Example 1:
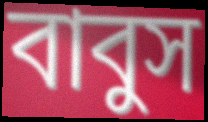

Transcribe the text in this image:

বাবুস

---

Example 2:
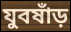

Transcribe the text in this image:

যুবষাঁড়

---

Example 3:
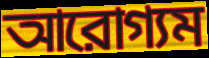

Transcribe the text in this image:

আরোগ্যম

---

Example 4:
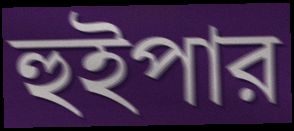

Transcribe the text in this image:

হুইপার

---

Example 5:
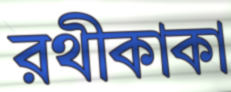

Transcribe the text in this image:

রথীকাকা